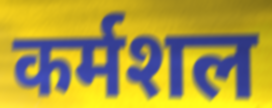
कर्मशल